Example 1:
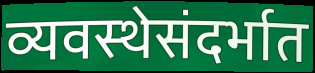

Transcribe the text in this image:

व्यवस्थेसंदर्भात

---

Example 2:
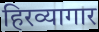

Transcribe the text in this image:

हिरव्यागार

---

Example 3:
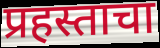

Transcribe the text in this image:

प्रहस्ताचा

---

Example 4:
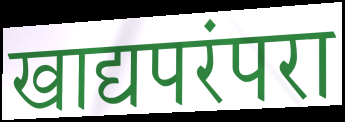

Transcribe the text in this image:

खाद्यपरंपरा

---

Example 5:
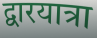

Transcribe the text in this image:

द्वारयात्रा